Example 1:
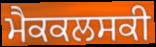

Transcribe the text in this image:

ਮੈਕਕਲਸਕੀ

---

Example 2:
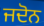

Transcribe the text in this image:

ਜਦੋਨ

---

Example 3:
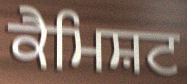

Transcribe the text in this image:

ਕੈਮਿਸ਼ਟ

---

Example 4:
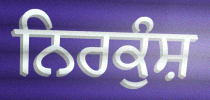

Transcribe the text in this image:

ਨਿਰਕੁੰਸ਼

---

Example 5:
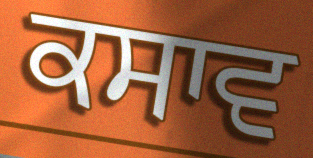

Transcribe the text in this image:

ਕਸਾਵ